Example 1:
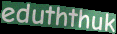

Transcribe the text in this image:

eduththuk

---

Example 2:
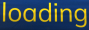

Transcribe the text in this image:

loading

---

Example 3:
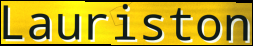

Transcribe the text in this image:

Lauriston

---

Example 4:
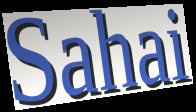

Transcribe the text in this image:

Sahai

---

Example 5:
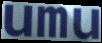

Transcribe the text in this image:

umu